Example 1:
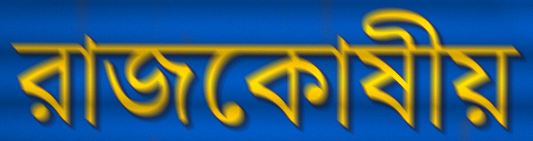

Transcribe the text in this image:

রাজকোষীয়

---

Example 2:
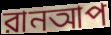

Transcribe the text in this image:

রানআপ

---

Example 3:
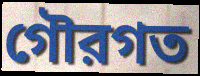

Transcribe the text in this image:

গৌরগত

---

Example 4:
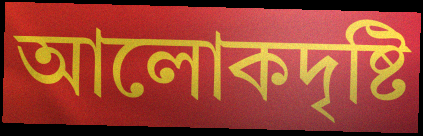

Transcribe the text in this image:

আলোকদৃষ্টি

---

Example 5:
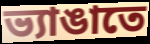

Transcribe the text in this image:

ভ্যাঙাতে